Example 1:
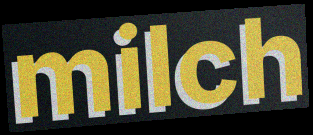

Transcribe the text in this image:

milch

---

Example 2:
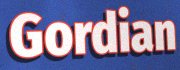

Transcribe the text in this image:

Gordian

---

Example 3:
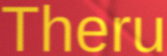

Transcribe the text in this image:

Theru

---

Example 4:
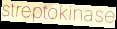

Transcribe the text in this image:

streptokinase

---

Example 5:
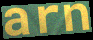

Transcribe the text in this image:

arn